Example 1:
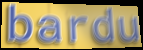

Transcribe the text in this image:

bardu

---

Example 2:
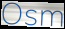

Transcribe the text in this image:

Osm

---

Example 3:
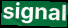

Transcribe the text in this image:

signal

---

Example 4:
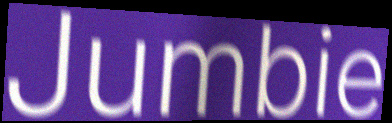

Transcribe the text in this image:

Jumbie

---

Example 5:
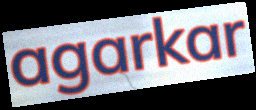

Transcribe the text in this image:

agarkar